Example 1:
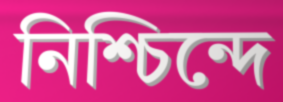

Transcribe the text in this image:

নিশ্চিন্দে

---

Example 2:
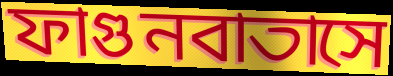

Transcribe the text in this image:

ফাগুনবাতাসে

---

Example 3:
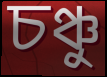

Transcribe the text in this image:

চঞ্চু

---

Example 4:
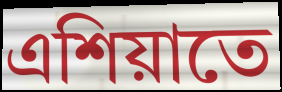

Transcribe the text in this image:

এশিয়াতে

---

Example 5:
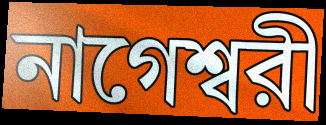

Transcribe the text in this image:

নাগেশ্বরী